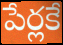
పేర్లకే